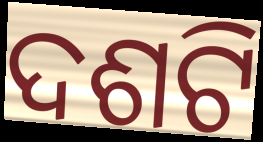
ଦଶଟି